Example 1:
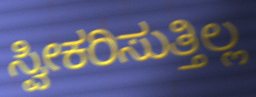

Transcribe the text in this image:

ಸ್ವೀಕರಿಸುತ್ತಿಲ್ಲ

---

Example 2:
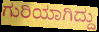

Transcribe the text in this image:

ಗುರಿಯಾಗಿದ್ದು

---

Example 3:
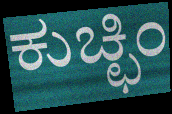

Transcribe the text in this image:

ಕುಚ್ಛಿಂ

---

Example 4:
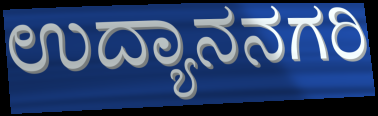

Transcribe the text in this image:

ಉದ್ಯಾನನಗರಿ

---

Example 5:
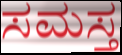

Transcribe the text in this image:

ಸಮಸ್ತ